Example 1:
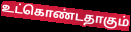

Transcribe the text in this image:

உட்கொண்டதாகும்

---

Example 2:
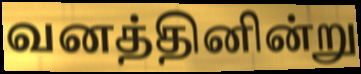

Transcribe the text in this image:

வனத்தினின்று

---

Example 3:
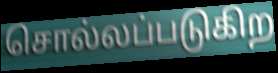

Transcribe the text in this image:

சொல்லப்படுகிற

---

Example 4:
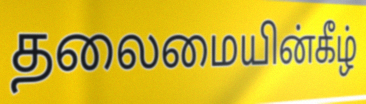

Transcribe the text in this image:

தலைமையின்கீழ்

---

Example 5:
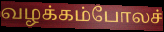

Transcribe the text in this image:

வழக்கம்போலச்